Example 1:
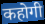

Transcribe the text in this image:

कहोगी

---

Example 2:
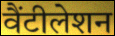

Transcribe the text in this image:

वैंटीलेशन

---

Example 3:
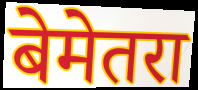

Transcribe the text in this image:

बेमेतरा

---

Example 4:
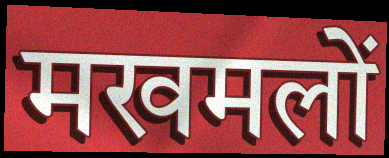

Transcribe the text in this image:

मखमलों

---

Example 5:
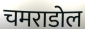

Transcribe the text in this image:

चमराडोल